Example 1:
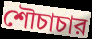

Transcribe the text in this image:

শৌচাচার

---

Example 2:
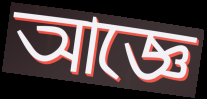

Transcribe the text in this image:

আজ্ঞে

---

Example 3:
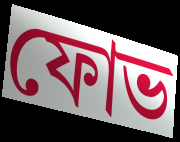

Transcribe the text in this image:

ফোভ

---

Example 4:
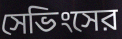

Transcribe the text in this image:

সেভিংসের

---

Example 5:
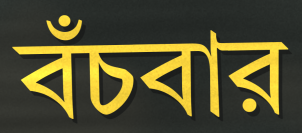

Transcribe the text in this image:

বঁচবার